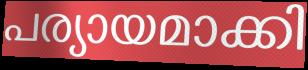
പര്യായമാക്കി